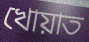
খোয়াত